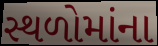
સ્થળોમાંના